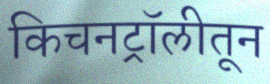
किचनट्रॉलीतून